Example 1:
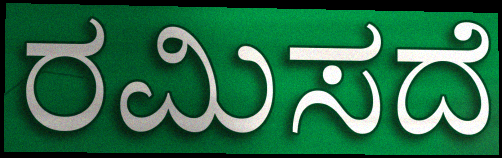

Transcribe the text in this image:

ರಮಿಸದೆ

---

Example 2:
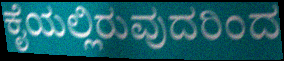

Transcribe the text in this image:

ಕೈಯಲ್ಲಿರುವುದರಿಂದ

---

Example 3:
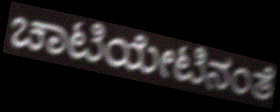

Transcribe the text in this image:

ಚಾಟಿಯೇಟಿನಂತೆ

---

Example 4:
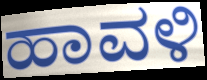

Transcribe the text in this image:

ಹಾವಳಿ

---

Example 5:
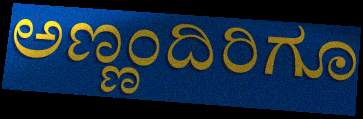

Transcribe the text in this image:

ಅಣ್ಣಂದಿರಿಗೂ